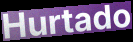
Hurtado